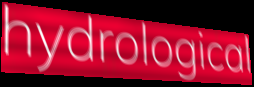
hydrological